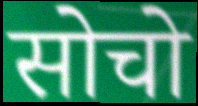
सोचो